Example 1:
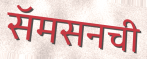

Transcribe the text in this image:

सॅमसनची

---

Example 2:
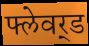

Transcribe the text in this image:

फ्लेवर्ड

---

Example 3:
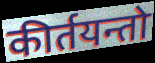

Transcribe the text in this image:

कीर्तयन्तो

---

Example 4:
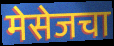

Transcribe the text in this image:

मेसेजचा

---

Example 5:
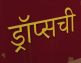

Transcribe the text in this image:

ड्रॉप्सची